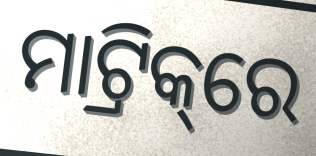
ମାଟ୍ରିକ୍‌ରେ